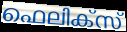
ഫെലിക്‌സ്